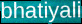
bhatiyali